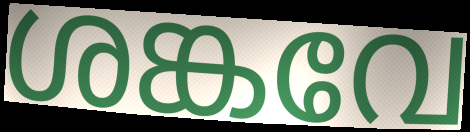
ശങ്കവേ